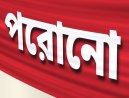
পরোনো